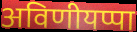
अविणीयप्पा